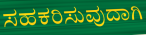
ಸಹಕರಿಸುವುದಾಗಿ